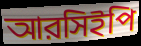
আরসিইপি